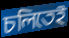
চলিতেই